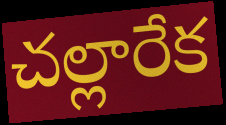
చల్లారేక